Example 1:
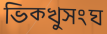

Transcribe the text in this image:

ভিক্খুসংঘ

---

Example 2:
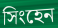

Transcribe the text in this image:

সিংহেন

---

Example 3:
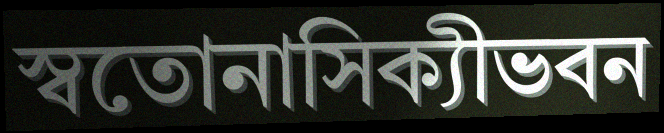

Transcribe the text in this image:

স্বতোনাসিক্যীভবন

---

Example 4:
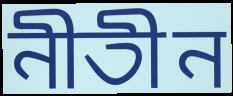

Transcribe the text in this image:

নীতীন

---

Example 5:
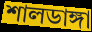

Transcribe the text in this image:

শালডাঙ্গা